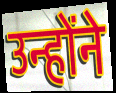
उन्होंने